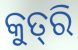
କୁତ୍‌ରି